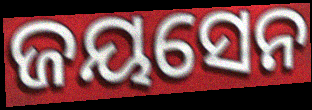
ଜୟସେନ